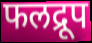
फलद्रूप